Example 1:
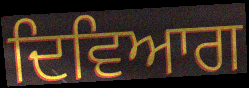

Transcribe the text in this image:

ਦਿਵਿਆਗ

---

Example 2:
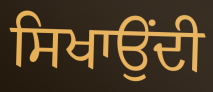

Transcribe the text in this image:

ਸਿਖਾਉਂਦੀ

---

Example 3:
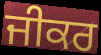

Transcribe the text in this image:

ਜੀਕਰ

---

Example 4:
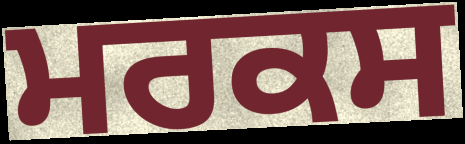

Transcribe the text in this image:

ਮਰਕਸ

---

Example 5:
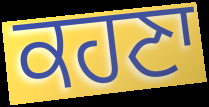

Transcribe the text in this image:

ਕਹਣਾ